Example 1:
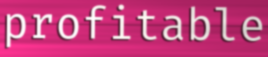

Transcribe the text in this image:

profitable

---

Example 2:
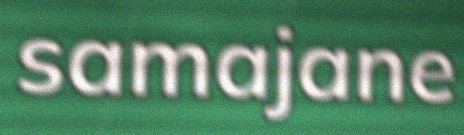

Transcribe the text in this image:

samajane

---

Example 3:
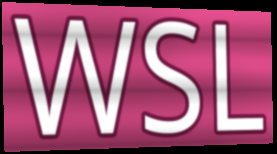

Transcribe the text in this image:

WSL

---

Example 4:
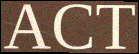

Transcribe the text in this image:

ACT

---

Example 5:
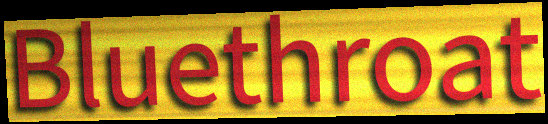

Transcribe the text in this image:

Bluethroat